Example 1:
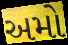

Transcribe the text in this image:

અમો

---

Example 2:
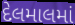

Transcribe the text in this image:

દેલમાલમાં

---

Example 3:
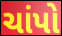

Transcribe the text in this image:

ચાંપો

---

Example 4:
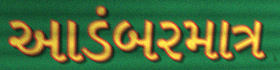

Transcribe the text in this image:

આડંબરમાત્ર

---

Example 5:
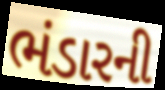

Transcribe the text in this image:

ભંડારની